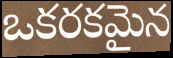
ఒకరకమైన